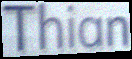
Thian